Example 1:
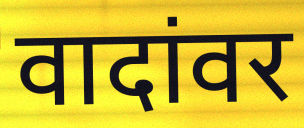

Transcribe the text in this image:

वादांवर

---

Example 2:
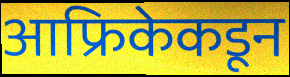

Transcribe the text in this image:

आफ्रिकेकडून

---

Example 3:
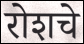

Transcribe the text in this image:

रोशचे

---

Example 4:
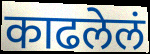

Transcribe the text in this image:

काढलेलं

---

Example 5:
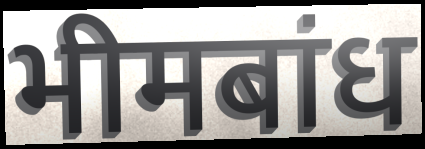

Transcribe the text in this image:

भीमबांध